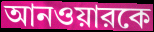
আনওয়ারকে